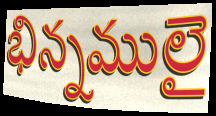
భిన్నములై